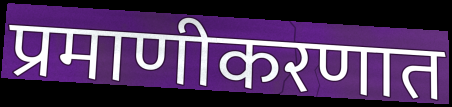
प्रमाणीकरणात